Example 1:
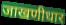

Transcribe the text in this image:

जाखणीधार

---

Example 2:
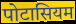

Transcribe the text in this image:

पोटासियम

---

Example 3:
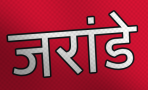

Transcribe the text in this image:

जरांडे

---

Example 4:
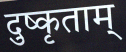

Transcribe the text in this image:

दुष्कृताम्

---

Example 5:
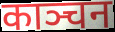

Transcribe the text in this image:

काञ्चन